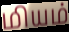
மியம்